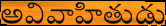
అవివాహితుడు